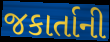
જકાર્તાની